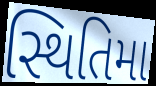
સ્થિતિમા